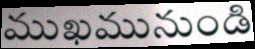
ముఖమునుండి